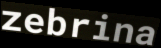
zebrina